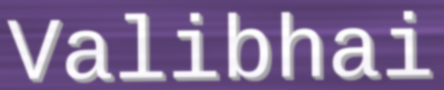
Valibhai